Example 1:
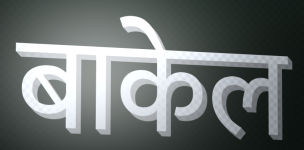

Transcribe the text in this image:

बाकेल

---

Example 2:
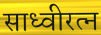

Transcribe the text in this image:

साध्वीरत्न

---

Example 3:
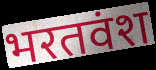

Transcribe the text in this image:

भरतवंश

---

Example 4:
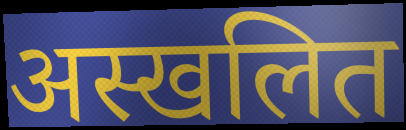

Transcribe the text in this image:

अस्खलित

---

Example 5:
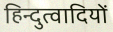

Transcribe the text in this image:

हिन्दुत्वादियों